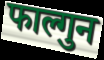
फाल्गुन